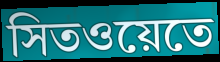
সিতওয়েতে